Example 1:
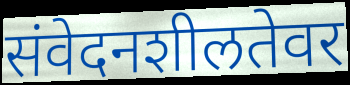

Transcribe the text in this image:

संवेदनशीलतेवर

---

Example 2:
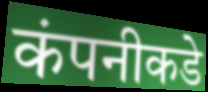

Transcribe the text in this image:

कंपनीकडे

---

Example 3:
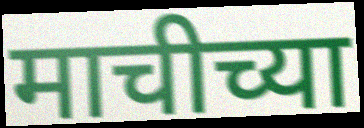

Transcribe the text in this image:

माचीच्या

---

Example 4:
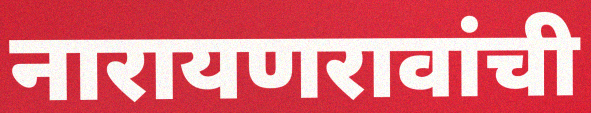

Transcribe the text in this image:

नारायणरावांची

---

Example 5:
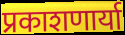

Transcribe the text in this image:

प्रकाशणार्या